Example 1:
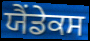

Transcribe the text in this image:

ਯੈਂਡੇਕਸ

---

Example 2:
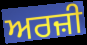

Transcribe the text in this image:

ਅਰਜ਼ੀ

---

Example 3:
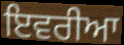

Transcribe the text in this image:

ਇਵਰੀਆ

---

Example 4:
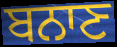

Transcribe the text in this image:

ਬਨਾਣ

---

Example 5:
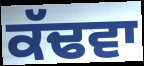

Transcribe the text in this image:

ਕੱਢਵਾ